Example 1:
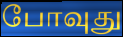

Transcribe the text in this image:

போவுது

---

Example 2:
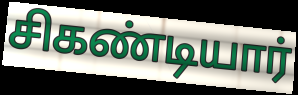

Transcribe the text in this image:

சிகண்டியார்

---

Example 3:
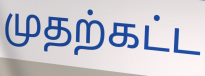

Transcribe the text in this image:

முதற்கட்ட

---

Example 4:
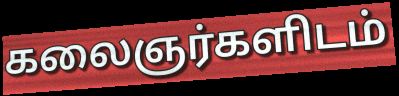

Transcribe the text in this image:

கலைஞர்களிடம்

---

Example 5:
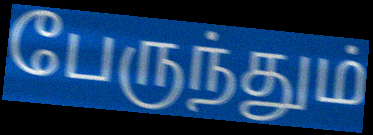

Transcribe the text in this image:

பேருந்தும்